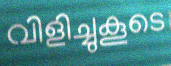
വിളിച്ചുകൂടെ